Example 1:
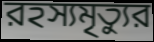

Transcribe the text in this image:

রহস্যমৃত্যুর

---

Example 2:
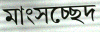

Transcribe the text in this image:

মাংসচ্ছেদ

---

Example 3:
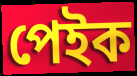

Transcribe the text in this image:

পেইক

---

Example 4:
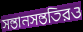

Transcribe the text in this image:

সন্তানসন্ততিরও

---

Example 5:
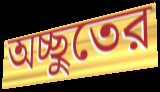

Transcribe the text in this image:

অচ্ছুতের